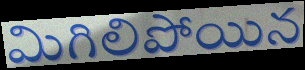
మిగిలిపోయిన